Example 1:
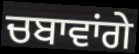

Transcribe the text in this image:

ਚਬਾਵਾਂਗੇ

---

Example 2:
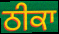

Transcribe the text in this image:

ਠੀਕਾ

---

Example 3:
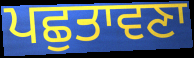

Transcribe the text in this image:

ਪਛੁਤਾਵਣਾ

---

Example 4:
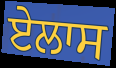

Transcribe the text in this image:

ਏਲਾਸ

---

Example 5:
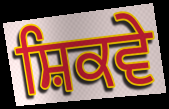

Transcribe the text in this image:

ਸ਼ਿਕਵੇ